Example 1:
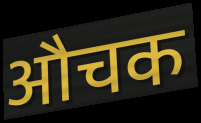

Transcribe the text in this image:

औचक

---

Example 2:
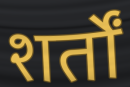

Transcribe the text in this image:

शर्तों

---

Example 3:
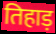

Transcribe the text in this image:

तिहाड़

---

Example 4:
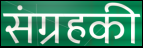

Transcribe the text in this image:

संग्रहकी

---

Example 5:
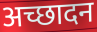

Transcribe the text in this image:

अच्छादन